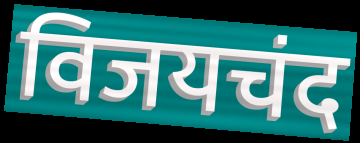
विजयचंद